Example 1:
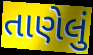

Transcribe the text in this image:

તાણેલું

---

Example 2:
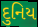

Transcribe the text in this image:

દુનિય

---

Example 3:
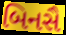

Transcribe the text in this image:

બિનસૈ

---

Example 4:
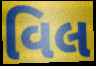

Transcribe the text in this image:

વિલ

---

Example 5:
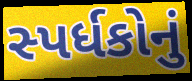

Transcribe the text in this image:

સ્પર્ધકોનું